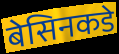
बेसिनकडे